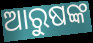
ଆରୁଷଙ୍କ